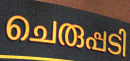
ചെരുപ്പടി